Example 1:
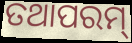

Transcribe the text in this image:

ତଥାପରମ୍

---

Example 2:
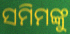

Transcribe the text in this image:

ସମିମଙ୍କୁ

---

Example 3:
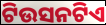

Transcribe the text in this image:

ଟିଉସନଟିଏ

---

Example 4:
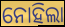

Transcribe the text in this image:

ନୋହିଲା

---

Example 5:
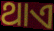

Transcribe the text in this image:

ଥାଏ